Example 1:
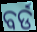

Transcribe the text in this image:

ବର୍ଡ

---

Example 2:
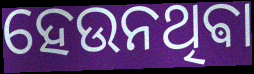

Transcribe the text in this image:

ହେଉନଥିଵା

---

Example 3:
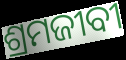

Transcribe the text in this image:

ଶ୍ରମଜୀବୀ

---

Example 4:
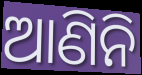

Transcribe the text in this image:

ଆଣିନି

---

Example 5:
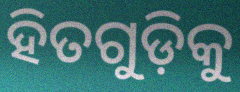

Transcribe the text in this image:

ହିତଗୁଡ଼ିକୁ